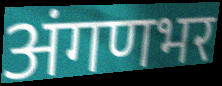
अंगणभर